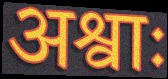
अश्वाः